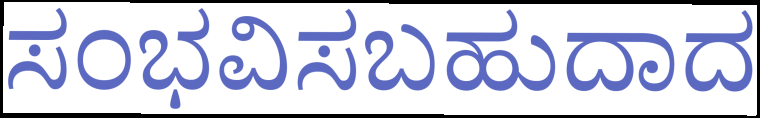
ಸಂಭವಿಸಬಹುದಾದ